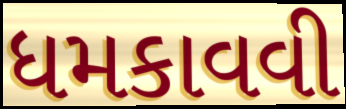
ધમકાવવી